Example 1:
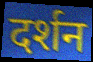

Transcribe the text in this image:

दर्शन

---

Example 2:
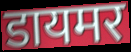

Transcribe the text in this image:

डायमर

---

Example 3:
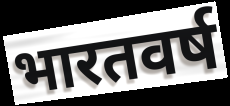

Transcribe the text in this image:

भारतवर्ष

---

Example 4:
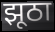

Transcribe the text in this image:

झूठा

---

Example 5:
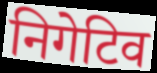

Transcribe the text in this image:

निगेटिव